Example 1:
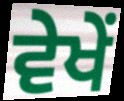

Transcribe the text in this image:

ਵੇਖੇਂ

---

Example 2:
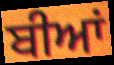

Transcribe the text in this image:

ਬੀਆਂ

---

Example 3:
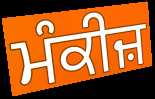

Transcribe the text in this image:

ਮੰਕੀਜ਼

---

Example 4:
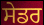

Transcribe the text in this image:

ਸੇਡਰ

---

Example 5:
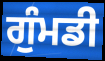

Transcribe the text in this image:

ਗੁੰਮਡੀ